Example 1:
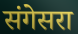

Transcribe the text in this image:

संगेसरा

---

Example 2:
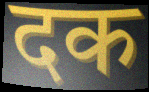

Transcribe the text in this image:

दक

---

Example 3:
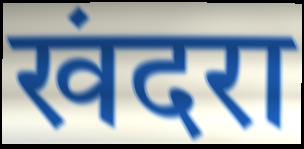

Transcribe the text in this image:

खंदरा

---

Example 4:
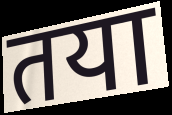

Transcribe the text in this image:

तया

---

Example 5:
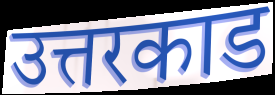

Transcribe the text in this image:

उत्तरकाड